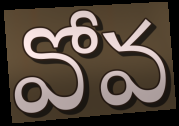
వోవ